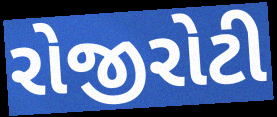
રોજીરોટી